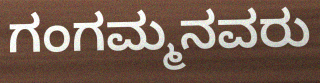
ಗಂಗಮ್ಮನವರು